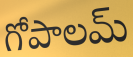
గోపాలమ్